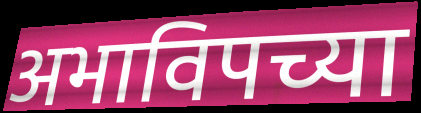
अभाविपच्या